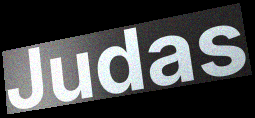
Judas